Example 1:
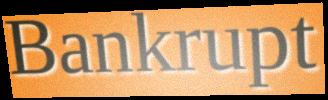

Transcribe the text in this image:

Bankrupt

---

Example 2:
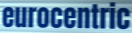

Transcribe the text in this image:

eurocentric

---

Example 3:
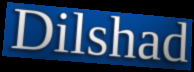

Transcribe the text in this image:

Dilshad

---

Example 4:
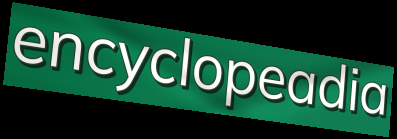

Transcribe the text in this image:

encyclopeadia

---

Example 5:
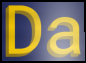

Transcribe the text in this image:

Da